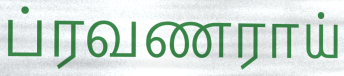
ப்ரவணராய்